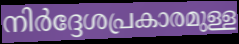
നിർദ്ദേശപ്രകാരമുള്ള